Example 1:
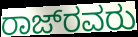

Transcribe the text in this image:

ರಾಜ್‌ರವರು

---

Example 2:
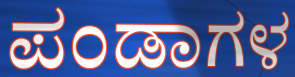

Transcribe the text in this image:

ಪಂಡಾಗಳ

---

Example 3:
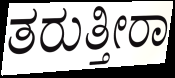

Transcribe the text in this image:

ತರುತ್ತೀರಾ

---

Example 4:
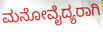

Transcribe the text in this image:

ಮನೋವೈದ್ಯರಾಗಿ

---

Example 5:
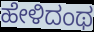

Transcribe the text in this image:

ಹೇಳಿದಂಥ